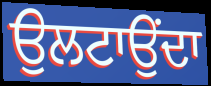
ਉਲਟਾਉਂਦਾ